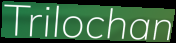
Trilochan